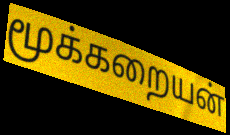
மூக்கறையன்